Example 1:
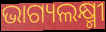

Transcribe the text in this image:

ଭାଗ୍ୟଲକ୍ଷ୍ମୀ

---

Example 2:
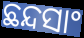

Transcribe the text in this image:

ଛନ୍ଦସାଂ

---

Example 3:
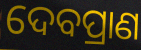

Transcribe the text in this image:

ଦେବପ୍ରାଣ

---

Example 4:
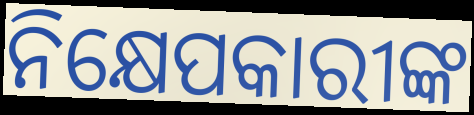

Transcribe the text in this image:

ନିକ୍ଷେପକାରୀଙ୍କ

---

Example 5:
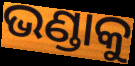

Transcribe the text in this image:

ଭଣ୍ଡାକୁ